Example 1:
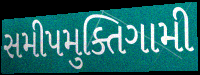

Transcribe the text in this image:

સમીપમુક્તિગામી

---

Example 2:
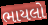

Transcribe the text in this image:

ભાયલો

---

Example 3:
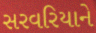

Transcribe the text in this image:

સરવરિયાને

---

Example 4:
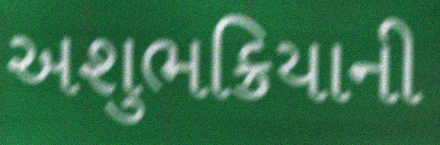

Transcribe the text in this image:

અશુભક્રિયાની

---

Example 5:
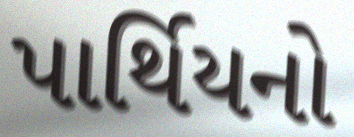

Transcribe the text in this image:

પાર્થિયનો